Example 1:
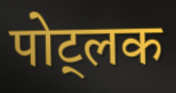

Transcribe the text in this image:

पोट्लक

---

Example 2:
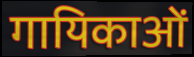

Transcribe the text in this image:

गायिकाओं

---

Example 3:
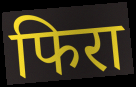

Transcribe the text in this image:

फिरा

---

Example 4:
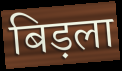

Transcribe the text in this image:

बिड़ला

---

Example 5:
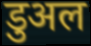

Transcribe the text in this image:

डुअल